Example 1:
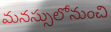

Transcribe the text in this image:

మనస్సులోనుంచి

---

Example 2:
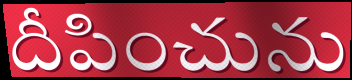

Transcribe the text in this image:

దీపించును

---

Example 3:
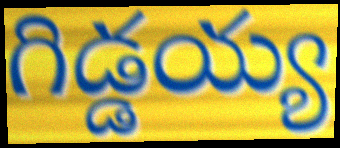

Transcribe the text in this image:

గిడ్డయ్య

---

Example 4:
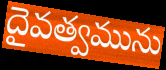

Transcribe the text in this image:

దైవత్వమును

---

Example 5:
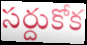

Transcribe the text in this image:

సర్దుకోక